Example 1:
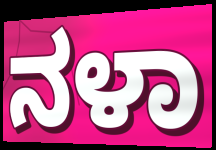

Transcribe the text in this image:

ನಳಾ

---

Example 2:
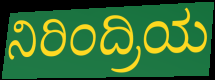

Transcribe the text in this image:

ನಿರಿಂದ್ರಿಯ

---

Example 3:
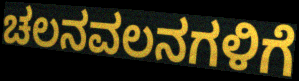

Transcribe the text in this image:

ಚಲನವಲನಗಳಿಗೆ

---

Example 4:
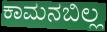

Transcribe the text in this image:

ಕಾಮನಬಿಲ್ಲ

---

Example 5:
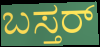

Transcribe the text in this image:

ಬಸ್ತರ್